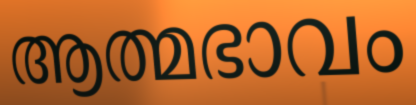
ആത്മഭാവം